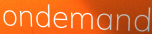
ondemand